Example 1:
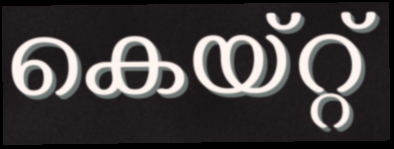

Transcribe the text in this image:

കെയ്റ്റ്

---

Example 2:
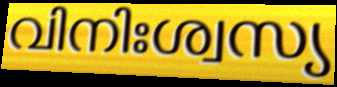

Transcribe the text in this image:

വിനിഃശ്വസ്യ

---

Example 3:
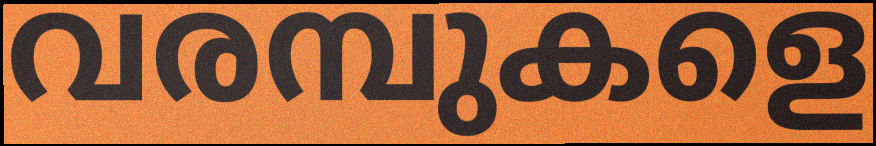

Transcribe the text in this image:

വരമ്പുകളെ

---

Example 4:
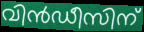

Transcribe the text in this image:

വിൻഡീസിന്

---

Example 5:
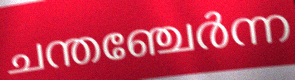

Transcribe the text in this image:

ചന്തഞ്ചേർന്ന